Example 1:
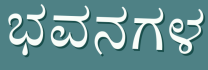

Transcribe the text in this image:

ಭವನಗಳ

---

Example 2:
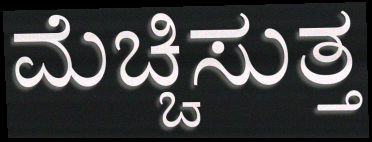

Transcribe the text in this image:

ಮೆಚ್ಚಿಸುತ್ತ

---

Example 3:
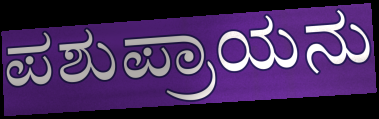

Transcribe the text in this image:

ಪಶುಪ್ರಾಯನು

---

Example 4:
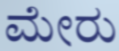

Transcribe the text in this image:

ಮೇರು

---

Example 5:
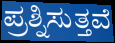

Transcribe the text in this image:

ಪ್ರಶ್ನಿಸುತ್ತವೆ